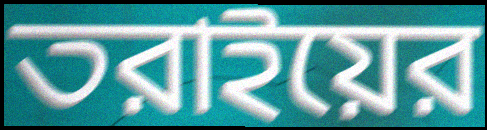
তরাইয়ের